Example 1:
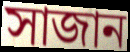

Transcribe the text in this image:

সাজান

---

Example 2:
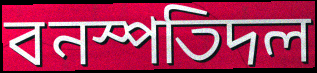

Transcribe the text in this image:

বনস্পতিদল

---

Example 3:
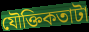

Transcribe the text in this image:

যৌক্তিকতাটা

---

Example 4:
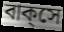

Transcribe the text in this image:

বাক্‌সে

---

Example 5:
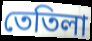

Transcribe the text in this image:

তেতিলা